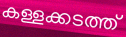
കള്ളക്കടത്ത്